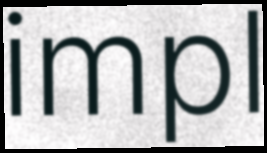
impl